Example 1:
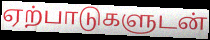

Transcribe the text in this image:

ஏற்பாடுகளுடன்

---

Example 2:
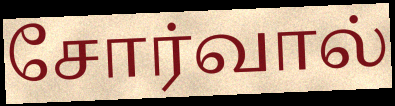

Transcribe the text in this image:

சோர்வால்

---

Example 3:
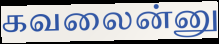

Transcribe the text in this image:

கவலைன்னு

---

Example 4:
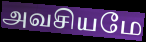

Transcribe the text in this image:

அவசியமே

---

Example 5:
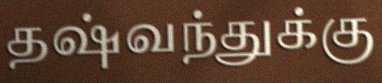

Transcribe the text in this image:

தஷ்வந்துக்கு